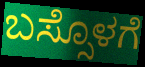
ಬಸ್ಸೊಳಗೆ